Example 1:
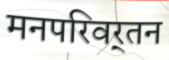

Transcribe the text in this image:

मनपरिवर्तन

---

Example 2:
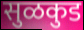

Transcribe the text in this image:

सुळकुड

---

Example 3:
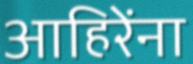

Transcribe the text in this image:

आहिरेंना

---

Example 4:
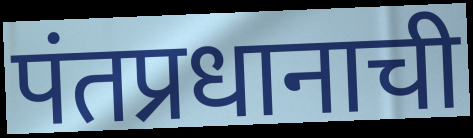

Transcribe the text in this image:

पंतप्रधानाची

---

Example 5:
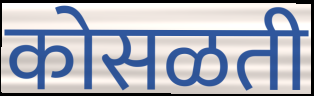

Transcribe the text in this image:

कोसळती